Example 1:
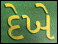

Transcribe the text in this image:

દેખે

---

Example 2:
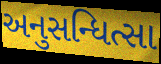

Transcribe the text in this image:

અનુસન્ધિત્સા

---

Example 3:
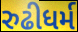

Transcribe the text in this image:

રુઢીધર્મ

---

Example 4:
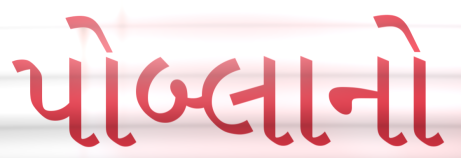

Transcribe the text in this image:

પોબ્લાનો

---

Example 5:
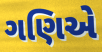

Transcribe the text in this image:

ગણિએ